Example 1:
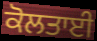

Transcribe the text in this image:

ਕੋਲਤਾਈ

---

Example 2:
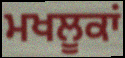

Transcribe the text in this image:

ਮਖਲੂਕਾਂ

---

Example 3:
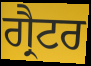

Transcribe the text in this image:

ਗ੍ਰੈਟਰ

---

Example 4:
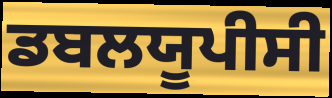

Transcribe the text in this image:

ਡਬਲਯੂਪੀਸੀ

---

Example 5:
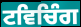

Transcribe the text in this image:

ਟਵਿਚਿੰਗ